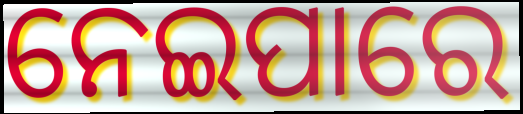
ନେଇପାରେ